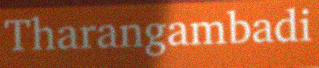
Tharangambadi